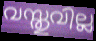
വസ്തുവില്ല